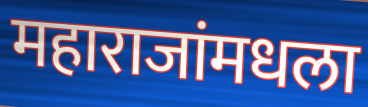
महाराजांमधला